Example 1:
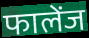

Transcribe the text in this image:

फालेंज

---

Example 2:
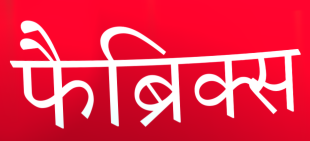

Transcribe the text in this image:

फैब्रिक्स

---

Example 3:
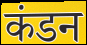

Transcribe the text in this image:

कंडन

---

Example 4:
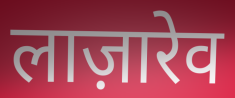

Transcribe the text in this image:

लाज़ारेव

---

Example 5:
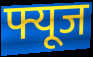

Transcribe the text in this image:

फ्यूज